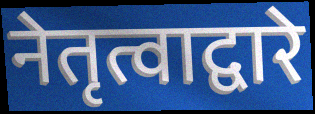
नेतृत्वाद्वारे